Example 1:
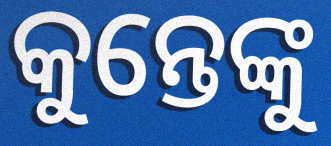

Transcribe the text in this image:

କୁନ୍ତେଙ୍କୁ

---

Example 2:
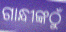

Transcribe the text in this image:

ଗାନ୍ଧୀଙ୍କଠୁଁ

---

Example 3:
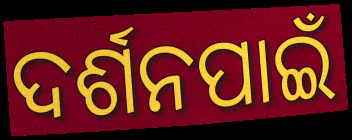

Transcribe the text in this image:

ଦର୍ଶନପାଇଁ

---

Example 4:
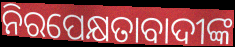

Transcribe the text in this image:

ନିରପେକ୍ଷତାବାଦୀଙ୍କ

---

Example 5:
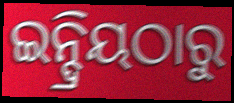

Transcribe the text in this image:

ଇନ୍ଦ୍ରିୟଠାରୁ